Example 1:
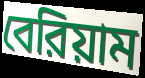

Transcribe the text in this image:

বেরিয়াম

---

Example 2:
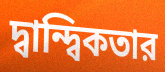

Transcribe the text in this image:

দ্বান্দ্বিকতার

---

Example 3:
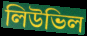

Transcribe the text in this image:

লিউভিল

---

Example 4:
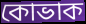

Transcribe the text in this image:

কোভাক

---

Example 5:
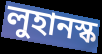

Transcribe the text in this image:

লুহানস্ক